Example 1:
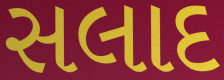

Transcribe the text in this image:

સલાદ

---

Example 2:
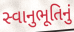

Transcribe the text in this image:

સ્વાનુભૂતિનું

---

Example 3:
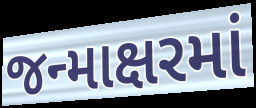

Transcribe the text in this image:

જન્માક્ષરમાં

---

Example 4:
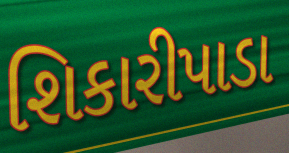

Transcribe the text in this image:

શિકારીપાડા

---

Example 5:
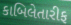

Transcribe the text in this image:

કાબિલેતારીફ